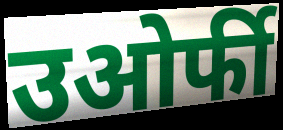
उओर्फी